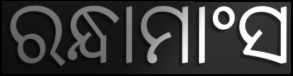
ରନ୍ଧାମାଂସ